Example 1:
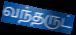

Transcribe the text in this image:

வந்தருட்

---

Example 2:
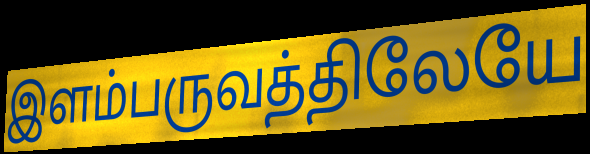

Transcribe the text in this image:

இளம்பருவத்திலேயே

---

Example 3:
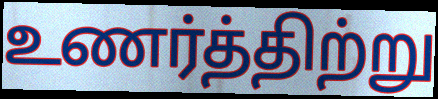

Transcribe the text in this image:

உணர்த்திற்று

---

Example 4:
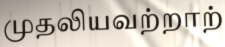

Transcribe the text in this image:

முதலியவற்றாற்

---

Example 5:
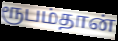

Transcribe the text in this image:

ரூபம்தான்